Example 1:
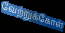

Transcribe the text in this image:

வேற்றுக்கோள்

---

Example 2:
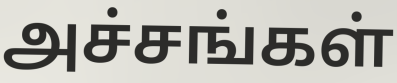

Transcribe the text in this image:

அச்சங்கள்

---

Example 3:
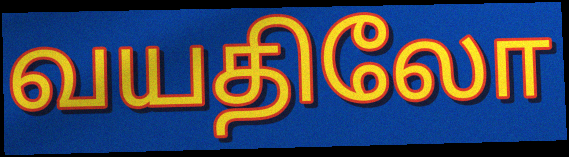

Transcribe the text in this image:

வயதிலோ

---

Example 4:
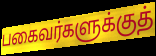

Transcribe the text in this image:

பகைவர்களுக்குத்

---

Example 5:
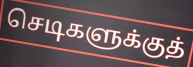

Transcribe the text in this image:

செடிகளுக்குத்